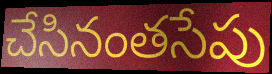
చేసినంతసేపు